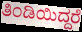
ತಿಂಡಿಯಿದ್ದರೆ